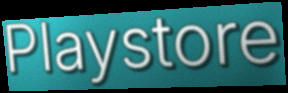
Playstore